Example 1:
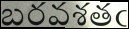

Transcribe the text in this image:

బరవశతఁ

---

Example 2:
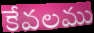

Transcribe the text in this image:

కేవలము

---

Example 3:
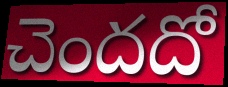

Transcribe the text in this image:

చెందదో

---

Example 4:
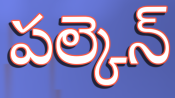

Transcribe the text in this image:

పల్కెన్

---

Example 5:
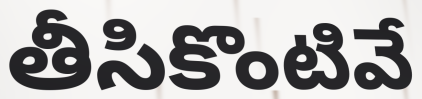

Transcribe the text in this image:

తీసికొంటివే